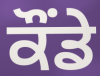
ਕੌਂਡੇ